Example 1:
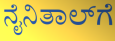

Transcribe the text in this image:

ನೈನಿತಾಲ್‌ಗೆ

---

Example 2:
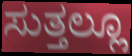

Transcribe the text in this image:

ಸುತ್ತಲ್ಲೂ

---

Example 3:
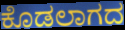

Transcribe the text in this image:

ಕೊಡಲಾಗದ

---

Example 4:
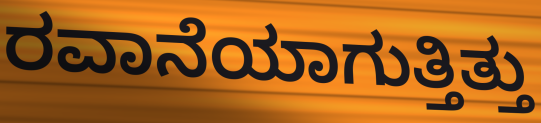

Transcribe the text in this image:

ರವಾನೆಯಾಗುತ್ತಿತ್ತು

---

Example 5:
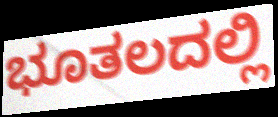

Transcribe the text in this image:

ಭೂತಲದಲ್ಲಿ